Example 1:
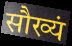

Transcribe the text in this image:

सौख्यं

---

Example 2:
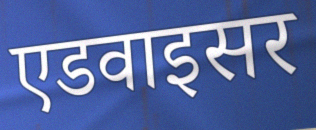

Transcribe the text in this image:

एडवाइसर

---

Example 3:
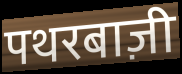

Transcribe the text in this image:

पथरबाज़ी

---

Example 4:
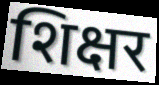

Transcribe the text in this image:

शिक्षर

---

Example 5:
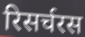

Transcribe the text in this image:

रिसर्चरस